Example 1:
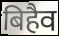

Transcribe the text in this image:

बिहैव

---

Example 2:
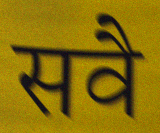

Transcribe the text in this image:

सवै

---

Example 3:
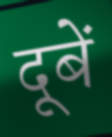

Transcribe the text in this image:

दूबें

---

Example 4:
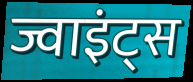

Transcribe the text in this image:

ज्वाइंट्स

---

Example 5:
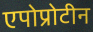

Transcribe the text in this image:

एपोप्रोटीन